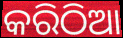
କରିଠିଆ